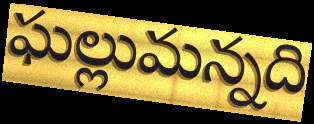
ఘల్లుమన్నది